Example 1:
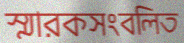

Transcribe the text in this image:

স্মারকসংবলিত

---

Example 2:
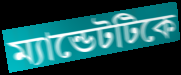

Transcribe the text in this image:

ম্যান্ডেটটিকে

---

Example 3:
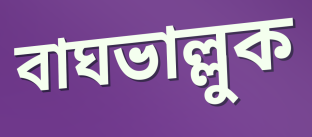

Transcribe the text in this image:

বাঘভাল্লুক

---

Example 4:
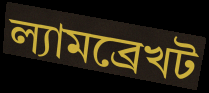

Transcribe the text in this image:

ল্যামব্রেখট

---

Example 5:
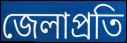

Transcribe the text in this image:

জেলাপ্রতি